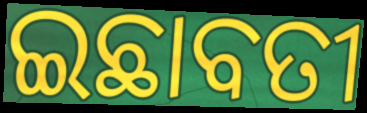
ଇଛାବତୀ